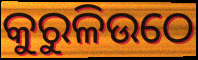
କୁରୁଳିଉଠେ